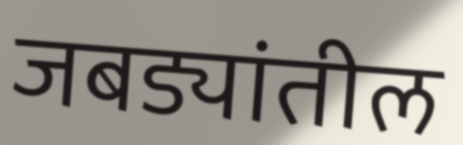
जबड्यांतील